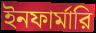
ইনফার্মারি